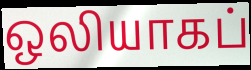
ஒலியாகப்